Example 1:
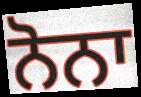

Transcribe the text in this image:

ਨੋਨਾ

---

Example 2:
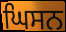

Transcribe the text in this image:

ਘਿਸਨ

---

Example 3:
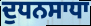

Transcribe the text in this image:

ਦੁਧਨਸਾਧਾ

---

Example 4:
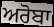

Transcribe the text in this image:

ਅਰੋਬਾ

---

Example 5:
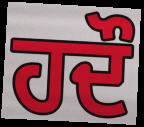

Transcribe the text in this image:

ਹਦੌ